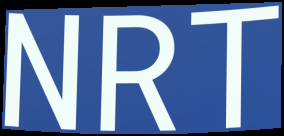
NRT